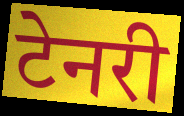
टेनरी